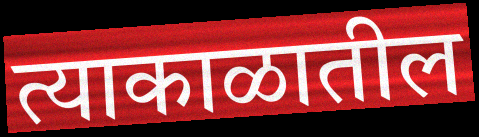
त्याकाळातील